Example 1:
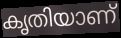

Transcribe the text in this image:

കൃതിയാണ്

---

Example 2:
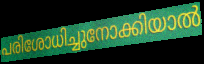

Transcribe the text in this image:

പരിശോധിച്ചുനോക്കിയാൽ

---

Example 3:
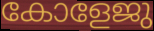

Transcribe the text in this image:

കോളേജു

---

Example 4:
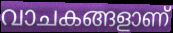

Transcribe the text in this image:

വാചകങ്ങളാണ്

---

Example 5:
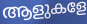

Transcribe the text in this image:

ആളുകളേ